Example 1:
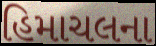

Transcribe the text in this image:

હિમાચલના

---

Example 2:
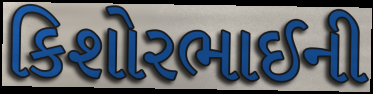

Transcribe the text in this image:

કિશોરભાઈની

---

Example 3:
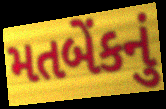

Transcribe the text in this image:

મતબેંકનું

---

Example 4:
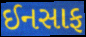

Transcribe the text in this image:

ઈનસાફ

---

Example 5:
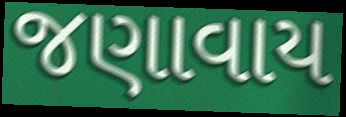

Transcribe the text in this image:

જણાવાય